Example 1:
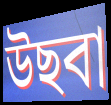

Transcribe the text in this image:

উছবা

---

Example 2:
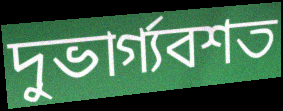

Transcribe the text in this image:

দুভার্গ্যবশত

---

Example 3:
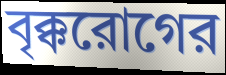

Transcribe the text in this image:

বৃক্করোগের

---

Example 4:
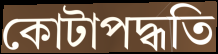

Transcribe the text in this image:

কোটাপদ্ধতি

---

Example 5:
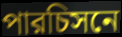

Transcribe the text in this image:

পারচিসনে